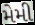
મેમી